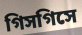
গিসগিসে